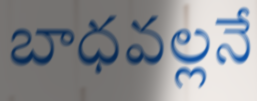
బాధవల్లనే